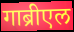
गाब्रीएल